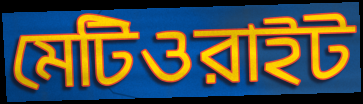
মেটিওরাইট